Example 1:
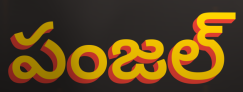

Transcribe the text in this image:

పంజల్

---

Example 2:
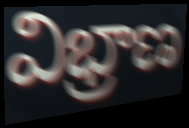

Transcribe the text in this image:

విభ్రాణ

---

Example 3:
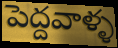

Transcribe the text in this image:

పెద్దవాళ్ళ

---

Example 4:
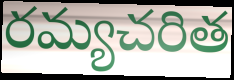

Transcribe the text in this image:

రమ్యచరిత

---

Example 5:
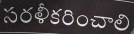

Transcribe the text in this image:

సరళీకరించాలి